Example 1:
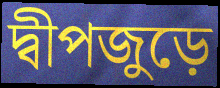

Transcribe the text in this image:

দ্বীপজুড়ে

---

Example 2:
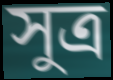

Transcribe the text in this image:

সুত্র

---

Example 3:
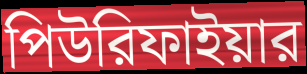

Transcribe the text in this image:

পিউরিফাইয়ার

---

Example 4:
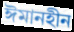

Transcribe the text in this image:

ঈমানহীন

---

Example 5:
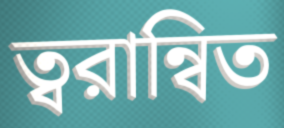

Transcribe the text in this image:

ত্বরান্বিত